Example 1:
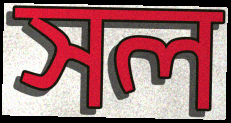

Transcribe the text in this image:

সল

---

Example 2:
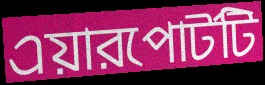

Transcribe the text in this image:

এয়ারপোর্টটি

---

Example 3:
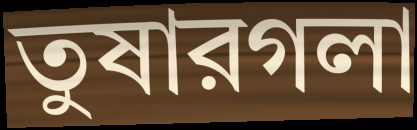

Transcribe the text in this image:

তুষারগলা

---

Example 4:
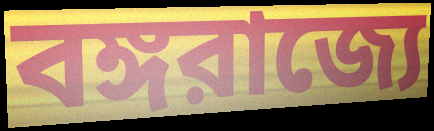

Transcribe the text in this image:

বঙ্গরাজ্যে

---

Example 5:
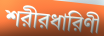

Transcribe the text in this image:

শরীরধারিণী